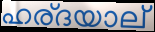
ഹര്ദയാല്